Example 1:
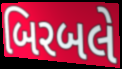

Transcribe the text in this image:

બિરબલે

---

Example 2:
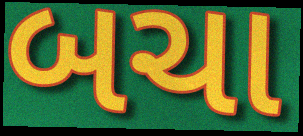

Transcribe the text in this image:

બચા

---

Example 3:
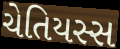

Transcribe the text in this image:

ચેતિયસ્સ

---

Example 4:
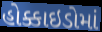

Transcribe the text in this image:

હોક્કાઇડોમાં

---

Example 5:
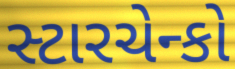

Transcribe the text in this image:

સ્ટારચેન્કો